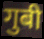
गुबी